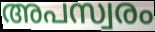
അപസ്വരം